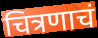
चित्रणाचं